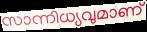
സാന്നിധ്യവുമാണ്